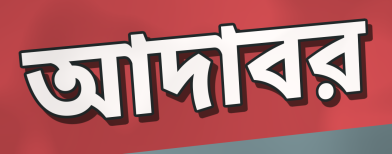
আদাবর